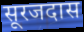
सूरजदास